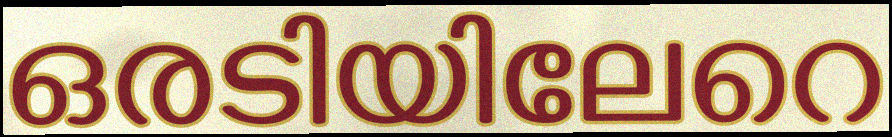
ഒരടിയിലേറെ